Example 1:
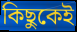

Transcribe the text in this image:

কিছুকেই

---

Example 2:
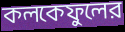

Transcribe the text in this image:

কলকেফুলের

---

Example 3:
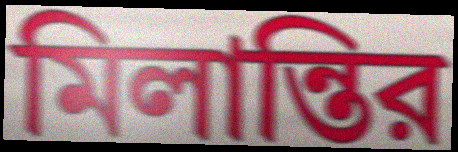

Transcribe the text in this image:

মিলান্তির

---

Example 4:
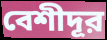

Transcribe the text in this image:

বেশীদূর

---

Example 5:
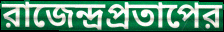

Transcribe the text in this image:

রাজেন্দ্রপ্রতাপের